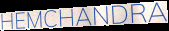
HEMCHANDRA